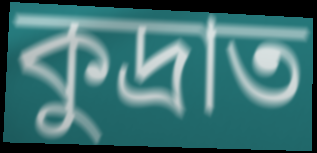
কুদ্রাত